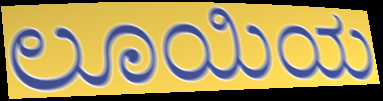
ಲೂಯಿಯ